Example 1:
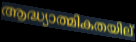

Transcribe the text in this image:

ആദ്ധ്യാത്മികതയില്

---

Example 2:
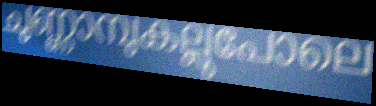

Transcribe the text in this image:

ചുണ്ണാമ്പുകല്ലുപോലെ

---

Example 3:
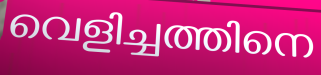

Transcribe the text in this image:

വെളിച്ചത്തിനെ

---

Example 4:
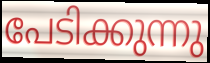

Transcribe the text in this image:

പേടിക്കുന്നു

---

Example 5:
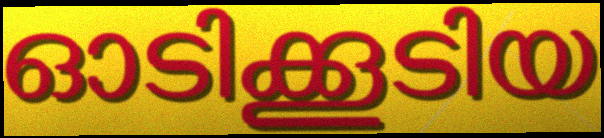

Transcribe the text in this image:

ഓടിക്കൂടിയ